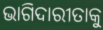
ଭାଗିଦାରୀତାକୁ